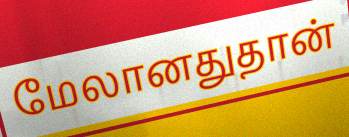
மேலானதுதான்